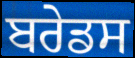
ਬਰੇਡਸ